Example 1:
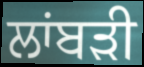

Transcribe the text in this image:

ਲਾਂਬੜੀ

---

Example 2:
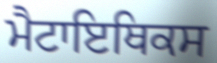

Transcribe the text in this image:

ਮੈਟਾਇਥਿਕਸ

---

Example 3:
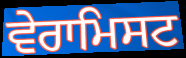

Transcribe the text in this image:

ਵੇਰਾਮਿਸਟ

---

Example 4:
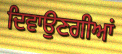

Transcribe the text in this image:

ਦਿਵਾਉਣਗੀਆਂ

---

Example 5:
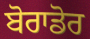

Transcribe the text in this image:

ਬੋਰਾਡੋਰ